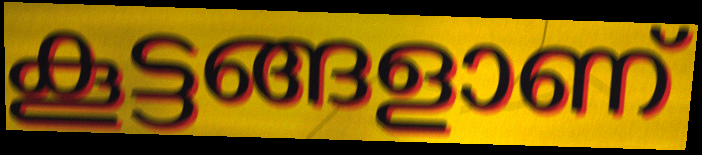
കൂട്ടങ്ങളാണ്